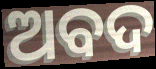
ଅବଦ